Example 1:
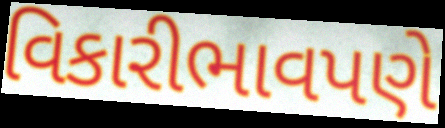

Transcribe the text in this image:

વિકારીભાવપણે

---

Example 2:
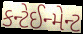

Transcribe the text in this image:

કન્ટેઈન્મેન્ટ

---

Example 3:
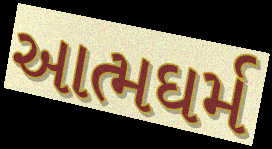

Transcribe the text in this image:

આત્મઘર્મ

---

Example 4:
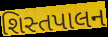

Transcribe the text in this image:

શિસ્તપાલન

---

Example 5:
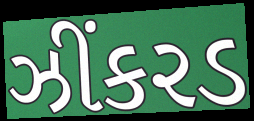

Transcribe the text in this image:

ઝીંકરડ